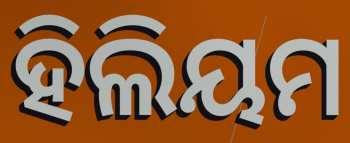
ହିଲିୟମ